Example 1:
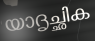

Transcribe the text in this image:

യാദൃച്ഛിക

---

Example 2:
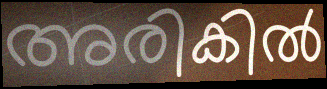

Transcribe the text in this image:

അരികിൽ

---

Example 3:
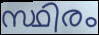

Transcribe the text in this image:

സ്ഥിരം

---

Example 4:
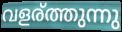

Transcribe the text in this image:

വളര്ത്തുന്നു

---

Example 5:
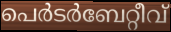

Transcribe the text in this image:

പെർടർബേറ്റീവ്